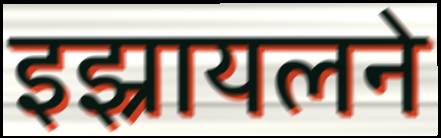
इझ्रायलने